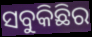
ସବୁକିଛିର